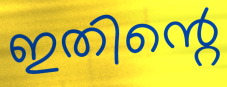
ഇതിന്റെ